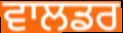
ਵਾਲਡਰ